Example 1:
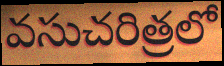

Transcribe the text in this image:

వసుచరిత్రలో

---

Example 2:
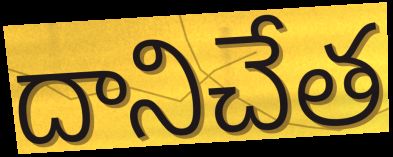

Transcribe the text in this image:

దానిచేత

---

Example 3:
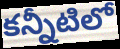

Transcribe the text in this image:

కన్నీటిలో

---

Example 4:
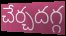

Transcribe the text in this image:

చేర్చదగ్గ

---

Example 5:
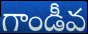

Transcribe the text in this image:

గాండీవ